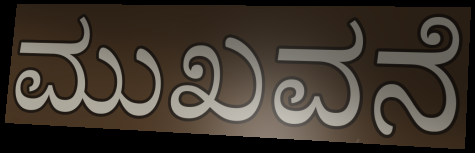
ಮುಖವನೆ